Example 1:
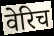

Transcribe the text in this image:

वेरिच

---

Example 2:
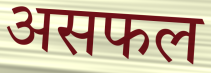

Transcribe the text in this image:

असफल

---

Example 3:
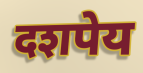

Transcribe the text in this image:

दशपेय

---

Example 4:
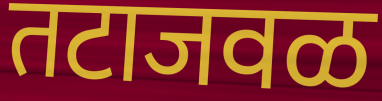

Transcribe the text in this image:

तटाजवळ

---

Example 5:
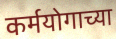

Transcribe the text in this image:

कर्मयोगाच्या